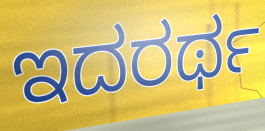
ಇದರರ್ಥ